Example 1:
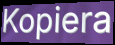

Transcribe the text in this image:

Kopiera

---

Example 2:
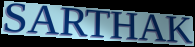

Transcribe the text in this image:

SARTHAK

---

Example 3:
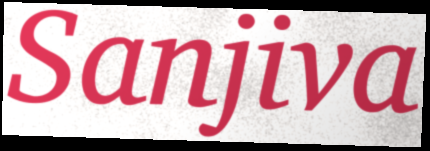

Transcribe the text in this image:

Sanjiva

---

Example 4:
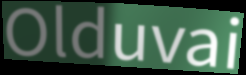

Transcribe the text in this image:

Olduvai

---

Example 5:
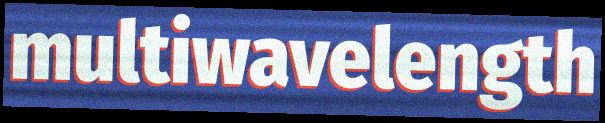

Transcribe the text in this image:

multiwavelength